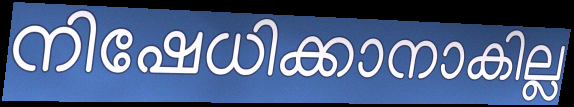
നിഷേധിക്കാനാകില്ല